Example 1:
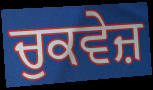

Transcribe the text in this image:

ਚੁਕਵੇਜ਼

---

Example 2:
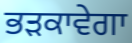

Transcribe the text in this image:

ਭੜਕਾਵੇਗਾ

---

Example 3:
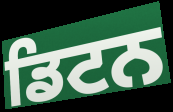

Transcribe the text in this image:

ਡਿਟਨ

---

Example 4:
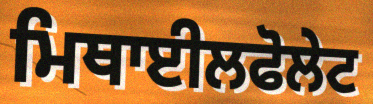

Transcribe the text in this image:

ਮਿਥਾਈਲਫੋਲੇਟ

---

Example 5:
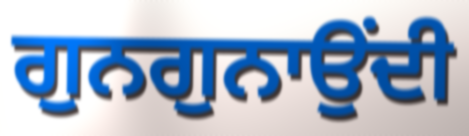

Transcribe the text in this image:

ਗੁਨਗੁਨਾਉਂਦੀ